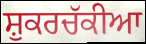
ਸ਼ੁਕਰਚੱਕੀਆ